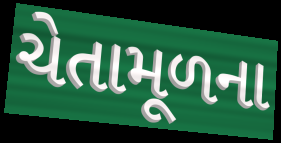
ચેતામૂળના